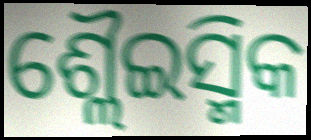
ଶ୍ଲୈଇସ୍ମିକ